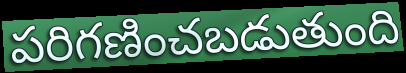
పరిగణించబడుతుంది